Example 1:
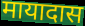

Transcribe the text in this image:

मायादास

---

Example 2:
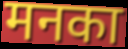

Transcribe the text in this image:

मनका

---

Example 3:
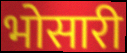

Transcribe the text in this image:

भोसारी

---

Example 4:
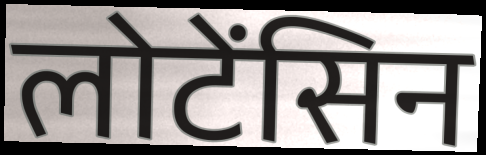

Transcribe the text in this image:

लोटेंसिन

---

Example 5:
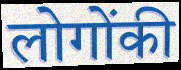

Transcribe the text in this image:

लोगोंकी